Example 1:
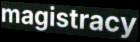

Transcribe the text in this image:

magistracy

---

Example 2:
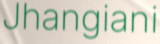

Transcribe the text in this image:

Jhangiani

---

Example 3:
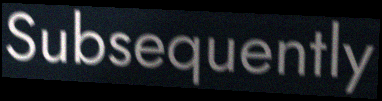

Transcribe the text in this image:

Subsequently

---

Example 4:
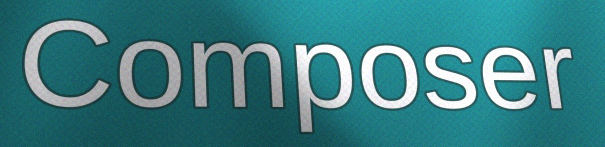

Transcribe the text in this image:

Composer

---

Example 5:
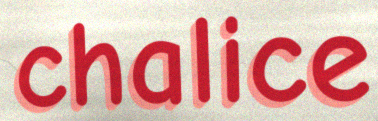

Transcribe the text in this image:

chalice